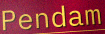
Pendam